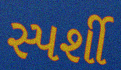
સ્પર્શી